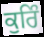
ਕੁਰਿੰ